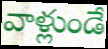
వాళ్లుండే